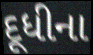
દૂધીના